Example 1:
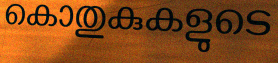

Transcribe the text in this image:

കൊതുകുകളുടെ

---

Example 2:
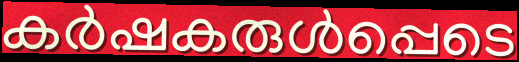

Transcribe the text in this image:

കർഷകരുൾപ്പെടെ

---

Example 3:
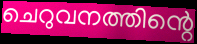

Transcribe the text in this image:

ചെറുവനത്തിന്റെ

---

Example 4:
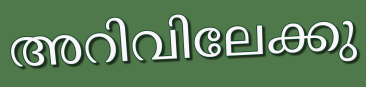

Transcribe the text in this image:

അറിവിലേക്കു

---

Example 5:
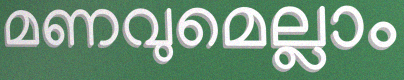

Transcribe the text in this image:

മണവുമെല്ലാം